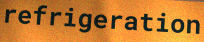
refrigeration